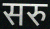
सरु